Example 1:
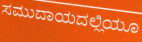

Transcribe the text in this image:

ಸಮುದಾಯದಲ್ಲಿಯೂ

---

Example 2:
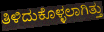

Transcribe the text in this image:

ತಿಳಿದುಕೊಳ್ಳಲಾಗಿತ್ತು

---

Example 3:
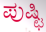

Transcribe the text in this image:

ಪುಷ್ಟಿ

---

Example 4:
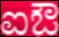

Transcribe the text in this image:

ಐಔ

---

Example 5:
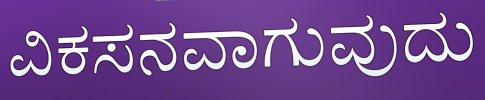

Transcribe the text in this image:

ವಿಕಸನವಾಗುವುದು